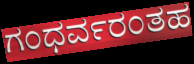
ಗಂಧರ್ವರಂತಹ